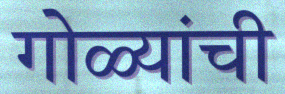
गोळ्यांची